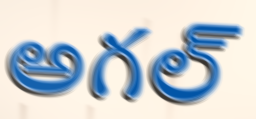
అగల్